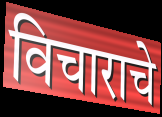
विचाराचे